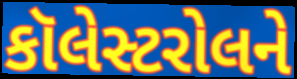
કૉલેસ્ટરોલને